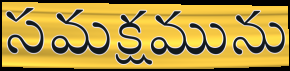
సమక్షమును